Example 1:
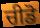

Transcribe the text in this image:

ਚੀਡੋ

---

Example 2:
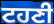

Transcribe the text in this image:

ਟਹਣੀ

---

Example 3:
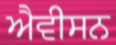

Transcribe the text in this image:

ਐਵੀਸਨ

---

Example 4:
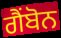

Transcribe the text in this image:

ਗੈਂਬੋਨ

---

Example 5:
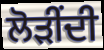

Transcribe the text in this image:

ਲੋੜੀਂਦੀ